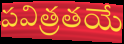
పవిత్రతయే